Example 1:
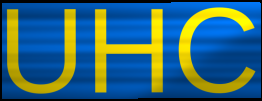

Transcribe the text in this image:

UHC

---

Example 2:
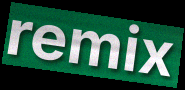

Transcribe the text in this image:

remix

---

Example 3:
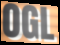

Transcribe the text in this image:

OGL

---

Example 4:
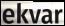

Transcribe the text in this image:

ekvar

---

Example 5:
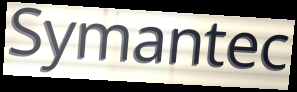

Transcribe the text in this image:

Symantec